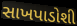
સાખપાડોશી